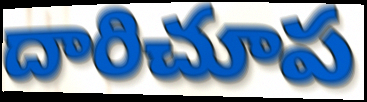
దారిచూప